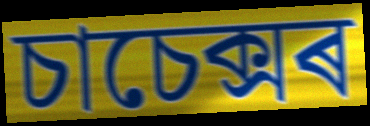
চাচেক্সৰ